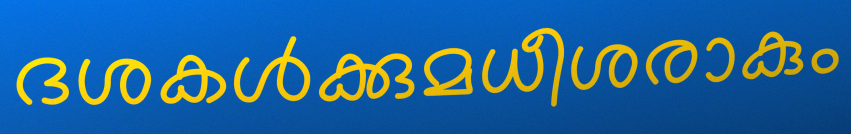
ദശകൾക്കുമധീശരാകും